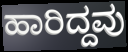
ಹಾರಿದ್ದವು